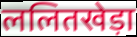
ललितखेड़ा